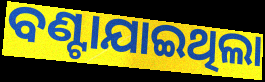
ବଣ୍ଟାଯାଇଥିଲା